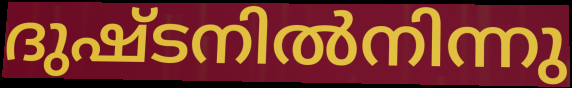
ദുഷ്ടനിൽനിന്നു